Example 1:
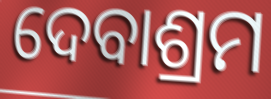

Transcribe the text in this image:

ଦେବାଶ୍ରମ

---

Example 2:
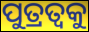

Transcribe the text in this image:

ପୁତ୍ରତ୍ଵକୁ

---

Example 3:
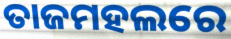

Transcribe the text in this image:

ତାଜମହଲରେ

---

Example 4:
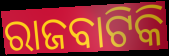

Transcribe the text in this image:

ରାଜବାଟିକି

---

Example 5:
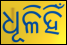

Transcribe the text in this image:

ଧୂଳିହିଁ